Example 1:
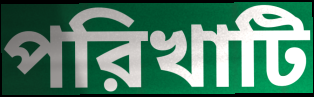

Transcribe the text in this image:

পরিখাটি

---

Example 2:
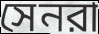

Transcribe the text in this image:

সেনরা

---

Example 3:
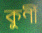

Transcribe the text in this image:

কুর্ণী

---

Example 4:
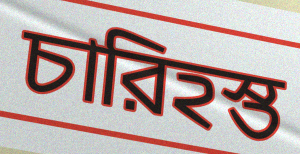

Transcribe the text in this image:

চারিহস্ত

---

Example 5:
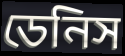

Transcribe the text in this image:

ডেনিস